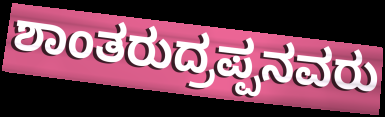
ಶಾಂತರುದ್ರಪ್ಪನವರು